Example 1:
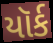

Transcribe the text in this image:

યૉર્ક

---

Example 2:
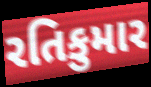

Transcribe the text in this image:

રતિકુમાર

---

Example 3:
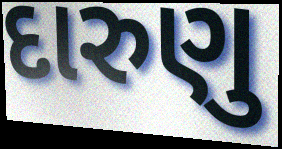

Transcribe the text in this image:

દારુણુ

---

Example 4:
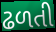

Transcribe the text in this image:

ઢળતી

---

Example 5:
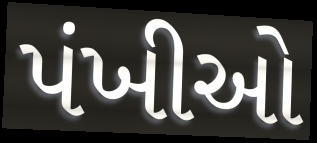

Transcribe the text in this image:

પંખીઓ